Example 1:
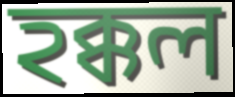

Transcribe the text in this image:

হক্কল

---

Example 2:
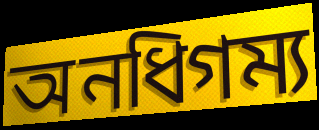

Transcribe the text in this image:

অনধিগম্য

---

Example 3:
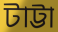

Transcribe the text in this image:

টাট্টা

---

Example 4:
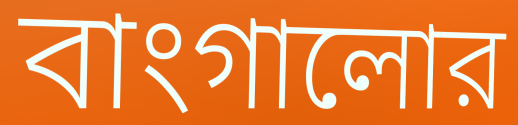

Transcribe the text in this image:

বাংগালোর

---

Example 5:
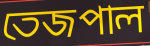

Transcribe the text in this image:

তেজপাল